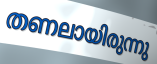
തണലായിരുന്നു